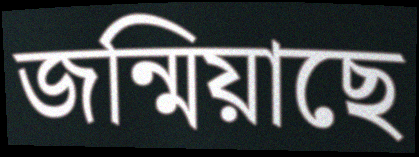
জন্মিয়াছে